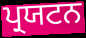
ਪ੍ਰਯਟਨ